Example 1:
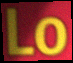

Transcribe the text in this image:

Lo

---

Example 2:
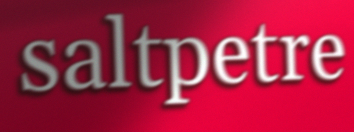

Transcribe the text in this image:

saltpetre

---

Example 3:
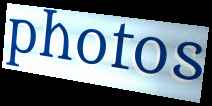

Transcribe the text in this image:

photos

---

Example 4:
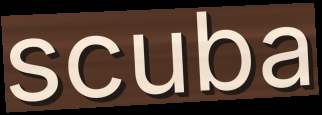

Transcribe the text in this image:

scuba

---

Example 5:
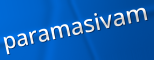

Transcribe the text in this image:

paramasivam